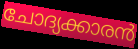
ചോദ്യക്കാരൻ